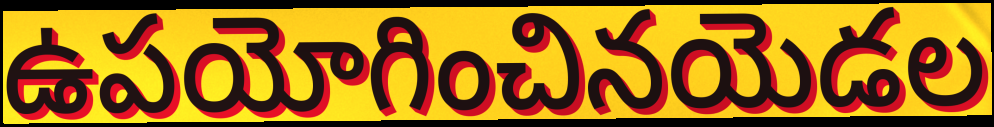
ఉపయోగించినయెడల